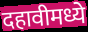
दहावीमध्ये